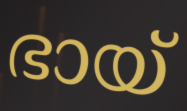
ഭായ്